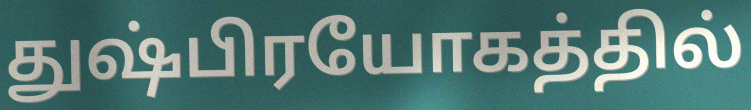
துஷ்பிரயோகத்தில்